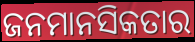
ଜନମାନସିକତାର